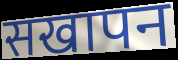
सखापन